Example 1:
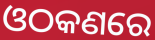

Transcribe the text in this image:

ଓଠକଣରେ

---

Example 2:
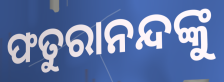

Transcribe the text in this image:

ଫତୁରାନନ୍ଦଙ୍କୁ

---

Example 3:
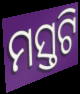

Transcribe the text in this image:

ମସ୍ତଟି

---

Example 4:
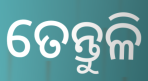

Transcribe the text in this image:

ତେନ୍ତୁଳି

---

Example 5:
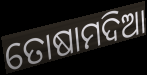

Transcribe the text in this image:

ତୋଷାମଦିଆ